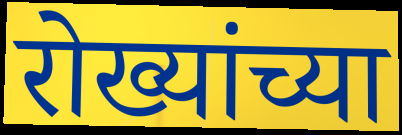
रोख्यांच्या